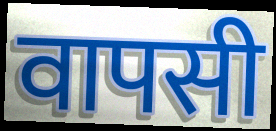
वापसी